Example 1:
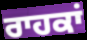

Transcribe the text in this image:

ਰਾਹਕਾਂ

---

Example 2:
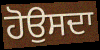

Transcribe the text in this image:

ਹੋਉਸਦਾ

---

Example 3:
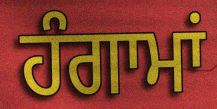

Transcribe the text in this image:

ਹੰਗਾਮਾਂ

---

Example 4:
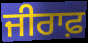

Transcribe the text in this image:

ਜੀਰਾਫ਼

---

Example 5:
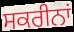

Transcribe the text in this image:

ਸਕਰੀਨਾਂ